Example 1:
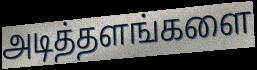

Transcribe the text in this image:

அடித்தளங்களை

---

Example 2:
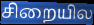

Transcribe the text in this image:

சிறையில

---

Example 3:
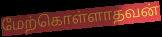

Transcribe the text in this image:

மேற்கொள்ளாதவன்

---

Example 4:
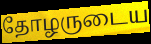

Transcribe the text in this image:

தோழருடைய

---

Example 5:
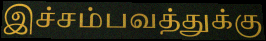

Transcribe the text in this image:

இச்சம்பவத்துக்கு